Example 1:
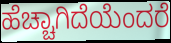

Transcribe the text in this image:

ಹೆಚ್ಚಾಗಿದೆಯೆಂದರೆ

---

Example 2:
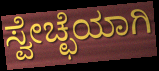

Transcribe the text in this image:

ಸ್ವೇಚ್ಛೆಯಾಗಿ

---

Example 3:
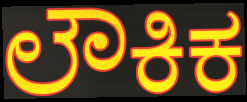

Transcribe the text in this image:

ಲೌಕಿಕ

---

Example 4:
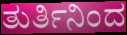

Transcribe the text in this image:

ತುರ್ತಿನಿಂದ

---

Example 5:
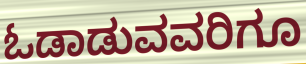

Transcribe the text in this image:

ಓಡಾಡುವವರಿಗೂ